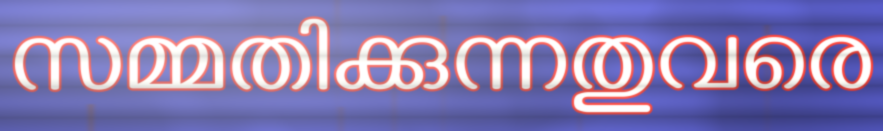
സമ്മതിക്കുന്നതുവരെ